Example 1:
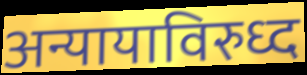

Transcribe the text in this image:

अन्यायाविरुध्द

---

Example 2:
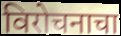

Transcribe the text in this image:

विरोचनाचा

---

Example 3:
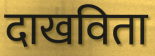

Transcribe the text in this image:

दाखविता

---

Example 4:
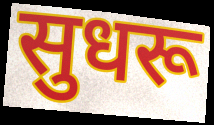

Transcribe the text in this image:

सुधरू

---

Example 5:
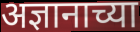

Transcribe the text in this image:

अज्ञानाच्या